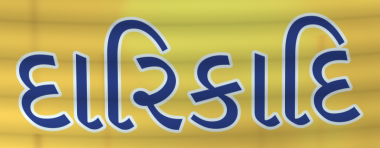
દારિકાદિ